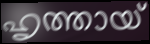
ഹൃത്തായ്